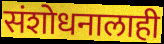
संशोधनालाही